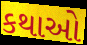
કથાઓ